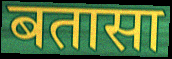
बतासा